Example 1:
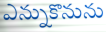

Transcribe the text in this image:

ఎన్నుకొనును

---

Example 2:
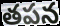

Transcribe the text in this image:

తపన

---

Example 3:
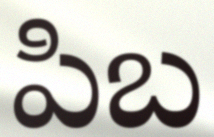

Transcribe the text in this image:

పిబ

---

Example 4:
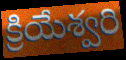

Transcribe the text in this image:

క్రియేశ్వరి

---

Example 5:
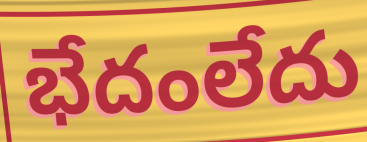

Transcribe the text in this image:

భేదంలేదు